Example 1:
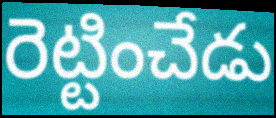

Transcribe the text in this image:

రెట్టించేడు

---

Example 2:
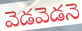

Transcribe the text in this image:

వెడవెడనె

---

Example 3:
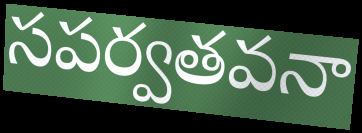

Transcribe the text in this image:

సపర్వతవనా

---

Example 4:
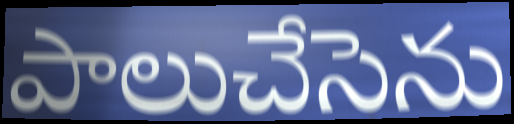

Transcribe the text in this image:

పాలుచేసెను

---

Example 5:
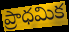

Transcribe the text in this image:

ప్రాధమిక